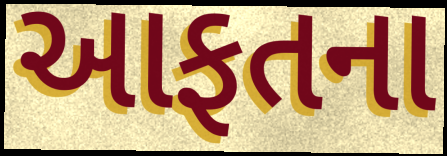
આફતના